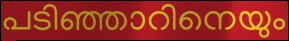
പടിഞ്ഞാറിനെയും